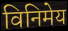
विनिमेय